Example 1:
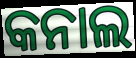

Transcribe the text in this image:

କନାଲ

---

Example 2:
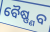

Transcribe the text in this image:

ବୈଷ୍ଣ୍ଣବ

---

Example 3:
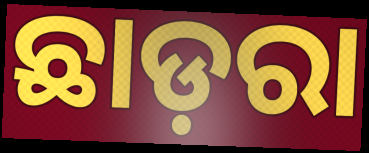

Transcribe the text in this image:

ଛାଡ଼ରା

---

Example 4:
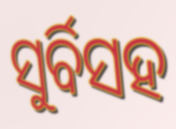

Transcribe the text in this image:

ସୁର୍ବିସହ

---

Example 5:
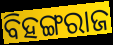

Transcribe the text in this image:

ବିହଙ୍ଗରାଜ